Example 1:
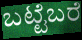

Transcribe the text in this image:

ಬಟ್ಟೆಬರೆ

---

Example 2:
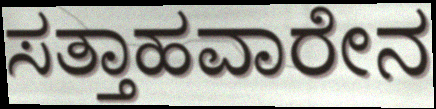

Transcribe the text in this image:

ಸತ್ತಾಹವಾರೇನ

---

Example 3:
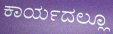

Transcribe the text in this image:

ಕಾರ್ಯದಲ್ಲೂ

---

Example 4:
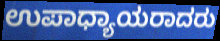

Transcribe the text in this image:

ಉಪಾಧ್ಯಾಯರಾದರು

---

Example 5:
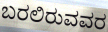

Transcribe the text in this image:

ಬರಲಿರುವವರ